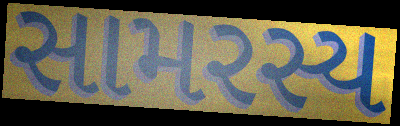
સામરસ્ય